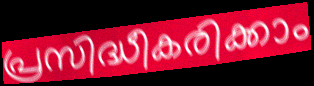
പ്രസിദ്ധീകരിക്കാം